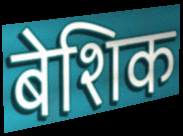
बेशिक